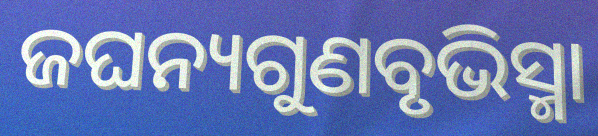
ଜଘନ୍ୟଗୁଣବୃଭିସ୍ମା